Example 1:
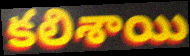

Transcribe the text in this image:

కలిశాయి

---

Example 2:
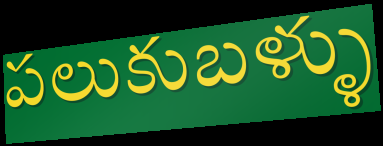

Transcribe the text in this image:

పలుకుబళ్ళు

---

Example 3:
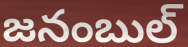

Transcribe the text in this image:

జనంబుల్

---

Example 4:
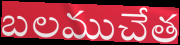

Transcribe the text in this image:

బలముచేత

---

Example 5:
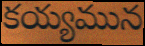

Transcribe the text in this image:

కయ్యమున